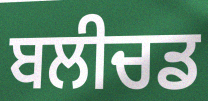
ਬਲੀਚਡ